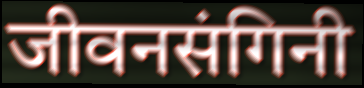
जीवनसंगिनी